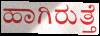
ಹಾಗಿರುತ್ತೆ